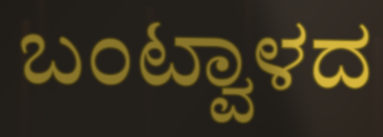
ಬಂಟ್ವಾಳದ